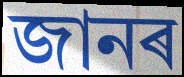
জানৰ